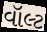
વૉલ્ટ